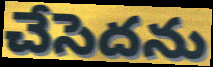
చేసెదను